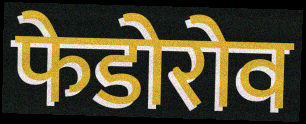
फेडोरोव